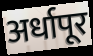
अर्धापूर